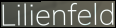
Lilienfeld